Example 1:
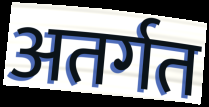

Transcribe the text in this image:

अतर्गत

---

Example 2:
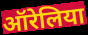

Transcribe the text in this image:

ऑरेलिया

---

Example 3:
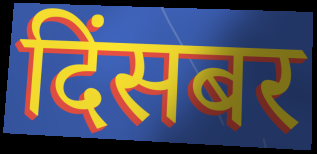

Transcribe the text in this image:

दिंसबर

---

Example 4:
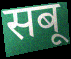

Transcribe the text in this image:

सबू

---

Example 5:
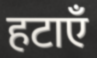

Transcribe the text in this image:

हटाएँ